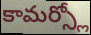
కామర్స్లో